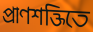
প্রাণশক্তিতে